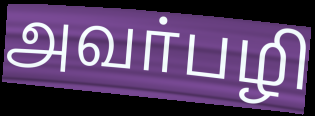
அவர்பழி